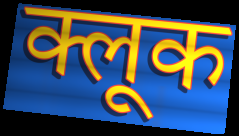
क्लूक